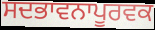
ਸਦਭਾਵਨਾਪੂਰਵਕ